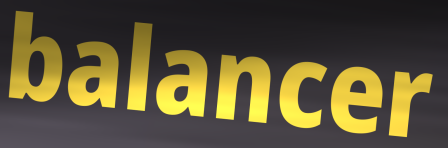
balancer